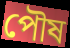
পৌষ